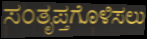
ಸಂತೃಪ್ತಗೊಳಿಸಲು